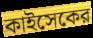
কাইসেকের